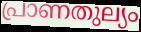
പ്രാണതുല്യം